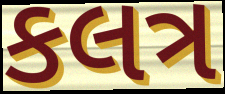
કલત્ર